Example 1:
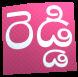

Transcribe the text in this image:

రెడ్డి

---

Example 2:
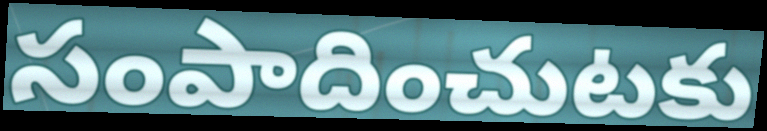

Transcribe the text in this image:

సంపాదించుటకు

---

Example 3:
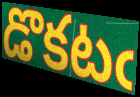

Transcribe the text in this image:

డొకటఁ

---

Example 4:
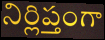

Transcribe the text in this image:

నిర్లిప్తంగా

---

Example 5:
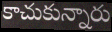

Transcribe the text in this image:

కాచుకున్నారు